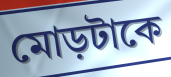
মোড়টাকে